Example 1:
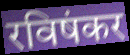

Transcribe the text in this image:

रविषंकर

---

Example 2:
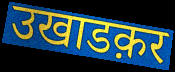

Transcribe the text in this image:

उखाडक़र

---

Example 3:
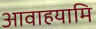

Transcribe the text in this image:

आवाहयामि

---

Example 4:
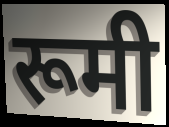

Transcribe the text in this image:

रूमी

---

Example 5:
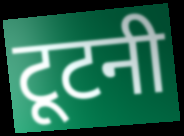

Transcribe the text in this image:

टूटनी